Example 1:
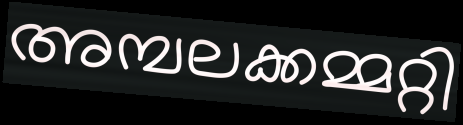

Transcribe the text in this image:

അമ്പലക്കമ്മറ്റി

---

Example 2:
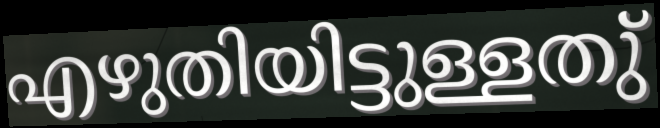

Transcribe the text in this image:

എഴുതിയിട്ടുള്ളതു്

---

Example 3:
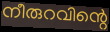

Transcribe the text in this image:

നീരുറവിന്റെ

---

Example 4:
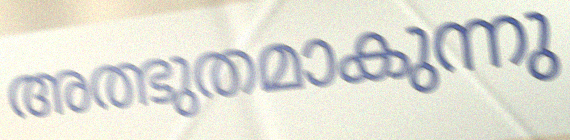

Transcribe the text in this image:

അത്ഭുതമാകുന്നു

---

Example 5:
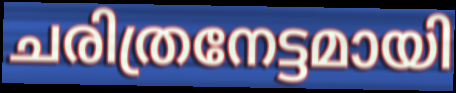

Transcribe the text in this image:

ചരിത്രനേട്ടമായി